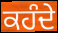
ਕਹੰਦੇ